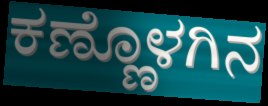
ಕಣ್ಣೊಳಗಿನ